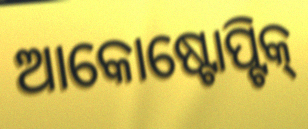
ଆକୋଷ୍ଟୋପ୍ଟିକ୍